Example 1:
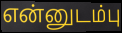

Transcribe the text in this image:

என்னுடம்பு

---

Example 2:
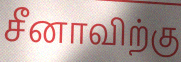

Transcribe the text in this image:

சீனாவிற்கு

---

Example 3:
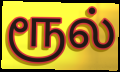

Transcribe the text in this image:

ரூல்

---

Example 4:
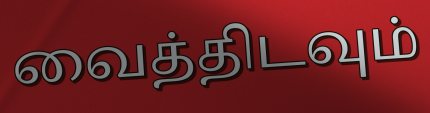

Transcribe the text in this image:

வைத்திடவும்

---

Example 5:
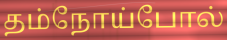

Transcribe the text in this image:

தம்நோய்போல்